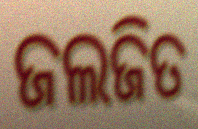
ଜଲଜିତ